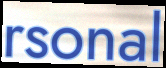
rsonal